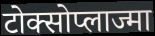
टोक्सोप्लाज्मा